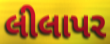
લીલાપર